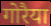
गोरैया